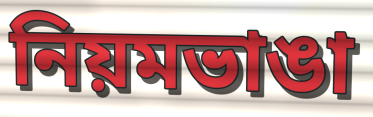
নিয়মভাঙা